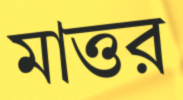
মাত্তর